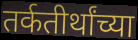
तर्कतीर्थांच्या